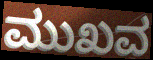
ಮುಖವ